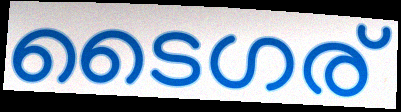
ടൈഗര്